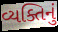
વ્યક્તિનું